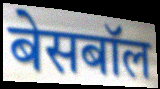
बेसबॉल